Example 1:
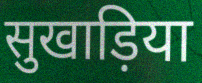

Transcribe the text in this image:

सुखाड़िया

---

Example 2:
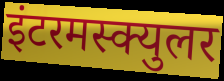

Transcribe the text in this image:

इंटरमस्क्युलर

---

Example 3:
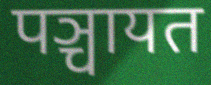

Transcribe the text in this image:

पञ्चायत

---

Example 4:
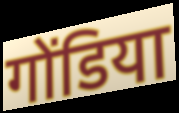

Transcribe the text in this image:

गोंडिया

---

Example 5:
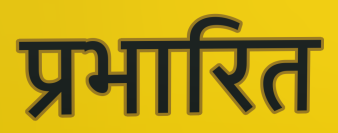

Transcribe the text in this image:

प्रभारित